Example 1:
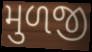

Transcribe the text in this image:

મુળજી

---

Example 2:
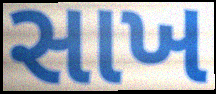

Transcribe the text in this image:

સાખ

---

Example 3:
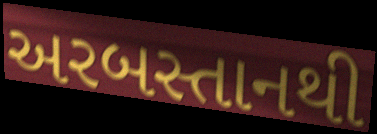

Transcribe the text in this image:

અરબસ્તાનથી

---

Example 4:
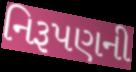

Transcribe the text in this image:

નિરૂપણની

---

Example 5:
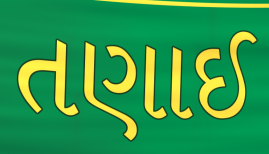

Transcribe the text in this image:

તણાઈ